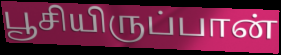
பூசியிருப்பான்